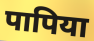
पापिया